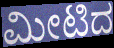
ಮೀಟಿದ